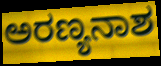
ಅರಣ್ಯನಾಶ